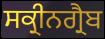
ਸਕ੍ਰੀਨਗ੍ਰੈਬ